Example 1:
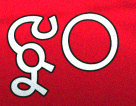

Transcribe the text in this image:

ଝୁଠ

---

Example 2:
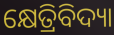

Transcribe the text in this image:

କ୍ଷେତ୍ରିବିଦ୍ୟା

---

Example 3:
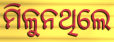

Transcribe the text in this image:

ମିଳୁନଥିଲେ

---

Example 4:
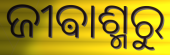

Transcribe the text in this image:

ଜୀଵାଶ୍ମରୁ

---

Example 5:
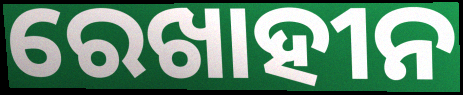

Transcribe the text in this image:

ରେଖାହୀନ